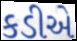
કડીએ